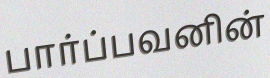
பார்ப்பவனின்